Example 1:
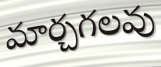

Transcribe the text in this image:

మార్చగలవు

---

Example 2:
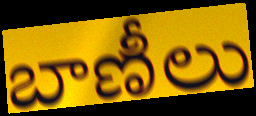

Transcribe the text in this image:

బాణీలు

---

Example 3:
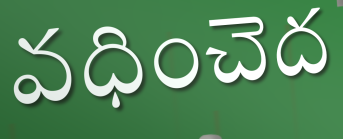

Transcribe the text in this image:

వధించెద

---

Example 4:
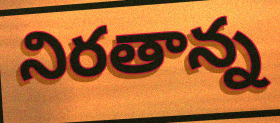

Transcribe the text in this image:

నిరతాన్న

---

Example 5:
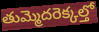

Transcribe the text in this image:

తుమ్మెదరెక్కల్తో